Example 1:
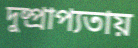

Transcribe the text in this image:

দুষ্প্রাপ্যতায়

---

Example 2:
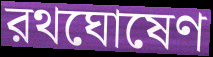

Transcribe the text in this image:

রথঘোষেণ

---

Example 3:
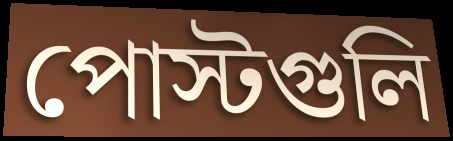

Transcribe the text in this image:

পোস্টগুলি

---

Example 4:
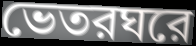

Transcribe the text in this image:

ভেতরঘরে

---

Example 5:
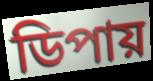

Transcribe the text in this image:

ডিপায়